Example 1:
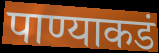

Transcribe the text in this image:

पाण्याकडं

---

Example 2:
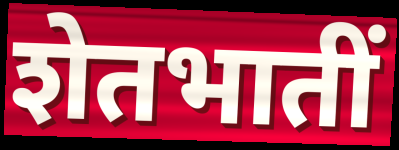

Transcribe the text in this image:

शेतभातीं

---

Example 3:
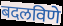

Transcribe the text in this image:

बदलविणे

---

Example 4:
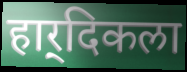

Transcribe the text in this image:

हार्दिकला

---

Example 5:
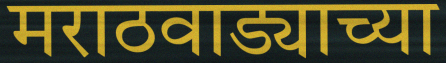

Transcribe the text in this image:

मराठवाड्याच्या